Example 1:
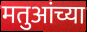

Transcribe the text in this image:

मतुआंच्या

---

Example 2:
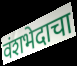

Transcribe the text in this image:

वंशभेदाचा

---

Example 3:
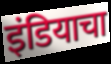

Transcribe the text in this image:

इंडियाचा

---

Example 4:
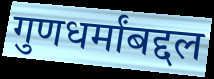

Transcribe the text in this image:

गुणधर्मांबद्दल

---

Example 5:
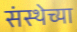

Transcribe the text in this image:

संस्थेच्या